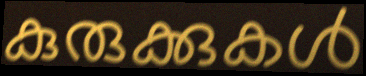
കുരുക്കുകൾ